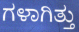
ಗಳಾಗಿತ್ತು